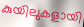
കുയിലുകളായി